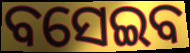
ବସେଇବ